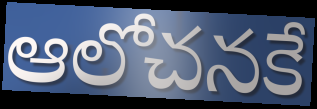
ఆలోచనకే